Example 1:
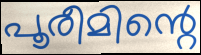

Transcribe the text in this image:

പൂരീമിന്റെ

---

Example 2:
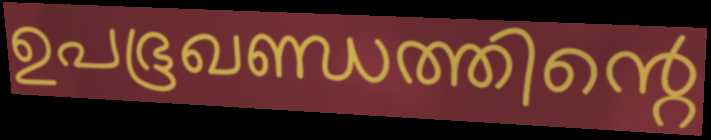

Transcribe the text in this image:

ഉപഭൂഖണ്ഡത്തിന്റെ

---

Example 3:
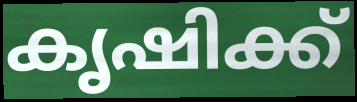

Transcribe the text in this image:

കൃഷിക്ക്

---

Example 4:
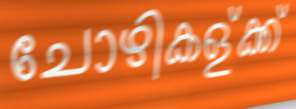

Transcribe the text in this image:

ചോഴികള്ക്ക്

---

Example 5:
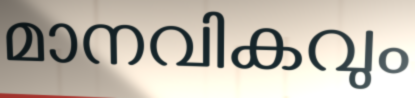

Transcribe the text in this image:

മാനവികവും